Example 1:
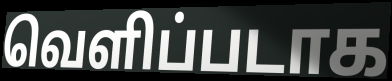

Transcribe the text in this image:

வெளிப்படாக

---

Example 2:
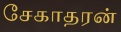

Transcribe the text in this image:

சேகாதரன்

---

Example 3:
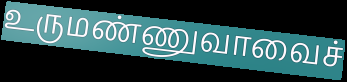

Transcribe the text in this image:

உருமண்ணுவாவைச்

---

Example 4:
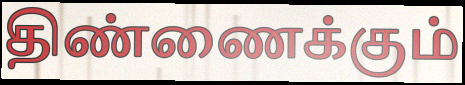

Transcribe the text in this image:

திண்ணைக்கும்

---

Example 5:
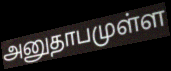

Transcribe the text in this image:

அனுதாபமுள்ள